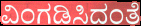
ವಿಂಗಡಿಸಿದಂತೆ